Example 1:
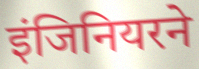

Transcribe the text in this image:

इंजिनियरने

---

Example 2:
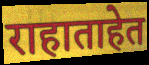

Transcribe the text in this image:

राहाताहेत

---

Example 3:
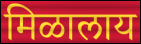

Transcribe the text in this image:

मिळालाय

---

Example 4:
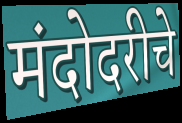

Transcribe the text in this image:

मंदोदरीचे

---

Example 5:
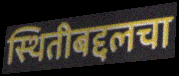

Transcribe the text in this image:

स्थितीबद्दलचा